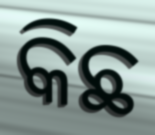
କିଛ